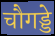
चौगड्डे